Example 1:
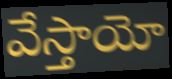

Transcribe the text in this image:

వేస్తాయో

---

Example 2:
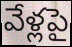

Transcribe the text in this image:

వేళ్లపై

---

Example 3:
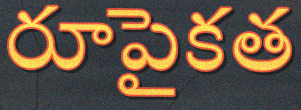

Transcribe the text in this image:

రూపైకత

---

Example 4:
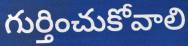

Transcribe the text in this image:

గుర్తించుకోవాలి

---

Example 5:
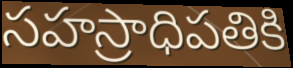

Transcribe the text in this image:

సహస్రాధిపతికి